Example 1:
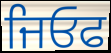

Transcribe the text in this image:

ਜਿਓਫ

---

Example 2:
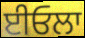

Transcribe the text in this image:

ਈਓਲਾ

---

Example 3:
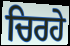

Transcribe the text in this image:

ਚਿਰਹੇ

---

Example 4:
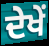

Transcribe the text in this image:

ਦੇਖੇਂ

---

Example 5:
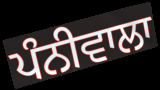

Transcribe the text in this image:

ਪੰਨੀਵਾਲਾ